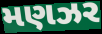
મણઝર